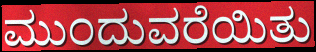
ಮುಂದುವರೆಯಿತು